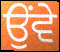
ਉੰਵੇ